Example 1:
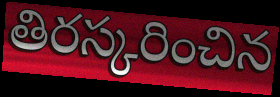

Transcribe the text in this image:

తిరస్కరించిన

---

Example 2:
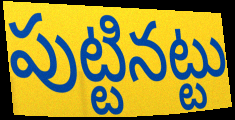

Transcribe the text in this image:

పుట్టినట్టు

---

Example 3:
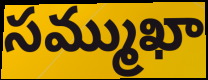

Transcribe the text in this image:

సమ్ముఖా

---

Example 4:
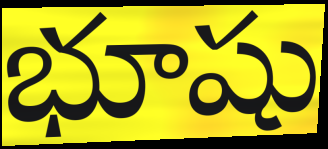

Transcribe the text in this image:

భూషు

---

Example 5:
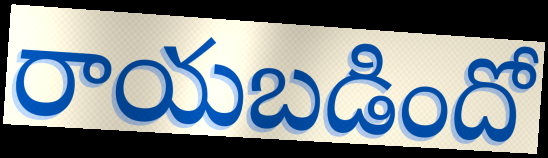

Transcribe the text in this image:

రాయబడిందో